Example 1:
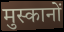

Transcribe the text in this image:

मुस्कानों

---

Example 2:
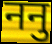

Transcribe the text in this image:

ननु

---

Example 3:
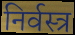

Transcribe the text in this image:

निर्वस्‍त्र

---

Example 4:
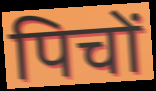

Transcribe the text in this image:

पिचों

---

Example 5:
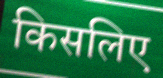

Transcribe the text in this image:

किसलिए